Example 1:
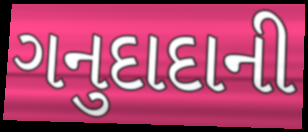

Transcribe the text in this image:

ગનુદાદાની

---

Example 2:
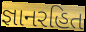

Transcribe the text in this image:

જ્ઞાનરહિત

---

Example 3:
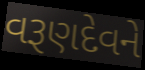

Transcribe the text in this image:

વરૂણદેવને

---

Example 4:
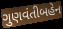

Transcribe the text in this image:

ગુણવંતીબહેન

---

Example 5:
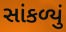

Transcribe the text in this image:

સાંકળ્યું